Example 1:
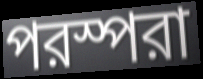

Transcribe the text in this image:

পরস্পরা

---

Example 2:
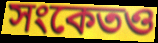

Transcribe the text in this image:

সংকেতও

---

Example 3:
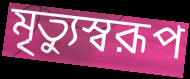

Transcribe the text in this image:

মৃত্যুস্বরূপ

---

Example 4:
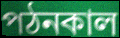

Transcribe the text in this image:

পঠনকাল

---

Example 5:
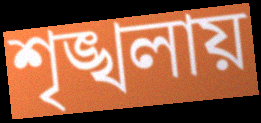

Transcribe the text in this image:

শৃঙ্খলায়